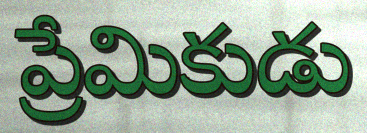
ప్రేమికుడు